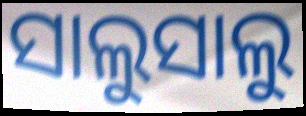
ସାଲୁସାଲୁ